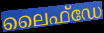
ലൈഫ്ഡേ